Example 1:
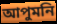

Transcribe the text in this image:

আপুমনি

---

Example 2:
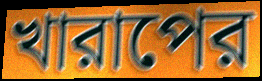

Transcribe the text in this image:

খারাপের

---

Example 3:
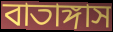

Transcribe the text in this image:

বাতাঙ্গাস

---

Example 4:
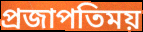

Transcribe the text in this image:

প্রজাপতিময়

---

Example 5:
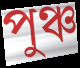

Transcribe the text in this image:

পুঞ্চ